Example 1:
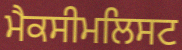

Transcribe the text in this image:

ਮੈਕਸੀਮਲਿਸਟ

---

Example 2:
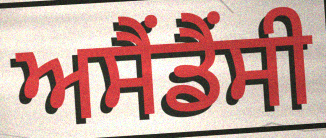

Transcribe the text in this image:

ਅਸੈਂਡੈਂਸੀ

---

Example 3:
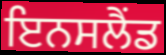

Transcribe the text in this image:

ਇਨਸਲੈਂਡ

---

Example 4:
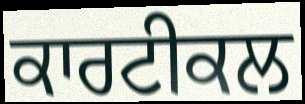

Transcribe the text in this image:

ਕਾਰਟੀਕਲ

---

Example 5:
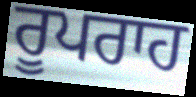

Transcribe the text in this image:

ਰੂਪਰਾਹ